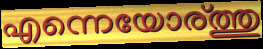
എന്നെയോര്ത്തു